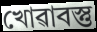
খোৱাবস্তু